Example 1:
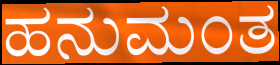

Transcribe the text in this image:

ಹನುಮಂತ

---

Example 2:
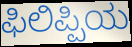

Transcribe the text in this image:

ಫಿಲಿಪ್ಪಿಯ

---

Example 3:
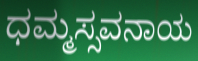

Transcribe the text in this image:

ಧಮ್ಮಸ್ಸವನಾಯ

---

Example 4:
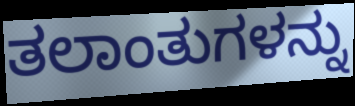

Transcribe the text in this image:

ತಲಾಂತುಗಳನ್ನು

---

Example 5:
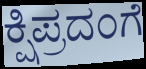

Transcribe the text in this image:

ಕ್ಷಿಪ್ರದಂಗೆ